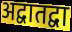
अद्वातद्वा